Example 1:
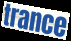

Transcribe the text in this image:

trance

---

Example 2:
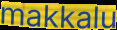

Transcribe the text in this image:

makkalu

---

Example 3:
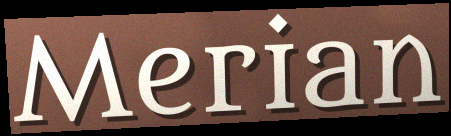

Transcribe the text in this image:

Merian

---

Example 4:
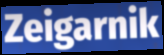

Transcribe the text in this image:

Zeigarnik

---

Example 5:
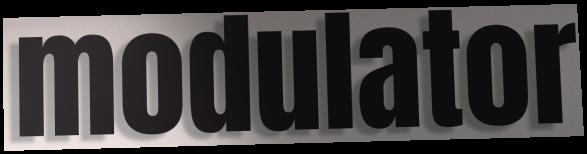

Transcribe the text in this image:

modulator